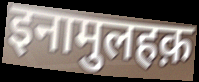
इनामुलहक़